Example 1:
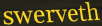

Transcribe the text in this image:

swerveth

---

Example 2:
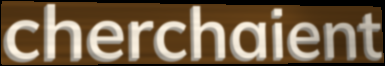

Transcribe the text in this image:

cherchaient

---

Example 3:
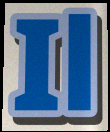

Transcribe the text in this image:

Il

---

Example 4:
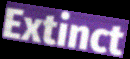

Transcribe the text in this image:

Extinct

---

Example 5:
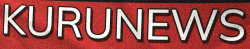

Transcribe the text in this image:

KURUNEWS